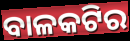
ବାଳକଟିର